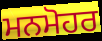
ਮਨਮੋਹਰ